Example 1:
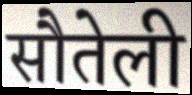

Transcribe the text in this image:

सौतेली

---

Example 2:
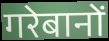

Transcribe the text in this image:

गरेबानों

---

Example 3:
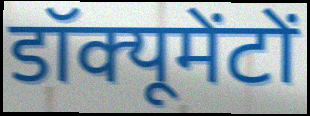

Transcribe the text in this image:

डॉक्यूमेंटों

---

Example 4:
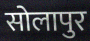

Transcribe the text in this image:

सोलापुर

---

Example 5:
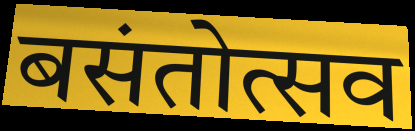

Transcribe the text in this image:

बसंतोत्सव